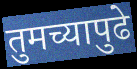
तुमच्यापुढे